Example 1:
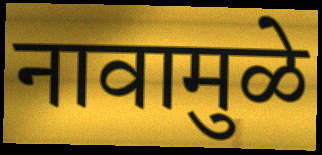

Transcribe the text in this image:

नावामुळे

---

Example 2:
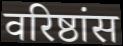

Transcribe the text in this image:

वरिष्ठांस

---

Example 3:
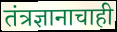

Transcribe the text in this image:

तंत्रज्ञानाचाही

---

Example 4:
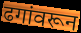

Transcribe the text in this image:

ढगांवरून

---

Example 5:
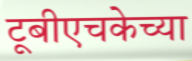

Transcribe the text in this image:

टूबीएचकेच्या